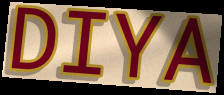
DIYA